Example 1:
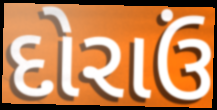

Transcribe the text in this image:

દોરાઉં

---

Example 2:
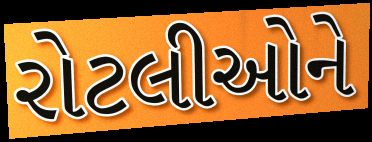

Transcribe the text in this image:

રોટલીઓને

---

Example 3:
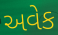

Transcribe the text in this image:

અવેક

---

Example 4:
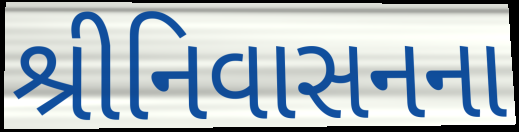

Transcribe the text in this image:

શ્રીનિવાસનના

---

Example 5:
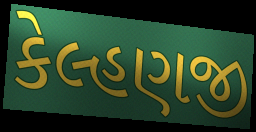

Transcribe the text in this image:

કેલ્હણજી